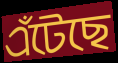
এঁটেছে